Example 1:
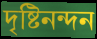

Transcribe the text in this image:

দৃষ্টিনন্দন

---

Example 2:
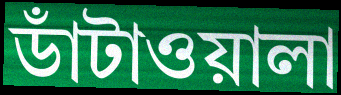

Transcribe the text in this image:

ডাঁটাওয়ালা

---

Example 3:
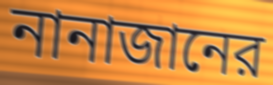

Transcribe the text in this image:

নানাজানের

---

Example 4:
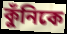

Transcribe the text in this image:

কুঁনিকে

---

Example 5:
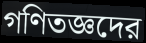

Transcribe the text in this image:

গণিতজ্ঞদের